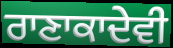
ਰਾਣਾਕਾਦੇਵੀ